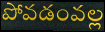
పోవడంవల్ల